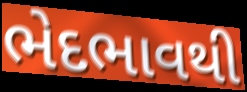
ભેદભાવથી